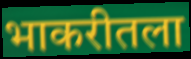
भाकरीतला